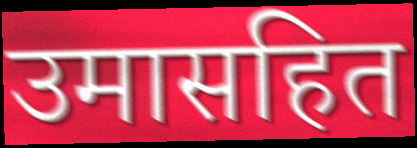
उमासहित